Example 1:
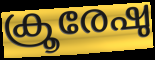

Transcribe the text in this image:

ക്രൂരേഷു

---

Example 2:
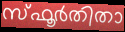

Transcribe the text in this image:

സ്ഫൂർതിതാ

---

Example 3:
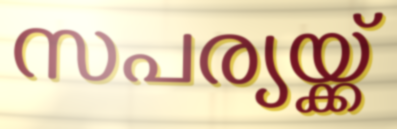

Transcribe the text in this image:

സപര്യയ്ക്ക്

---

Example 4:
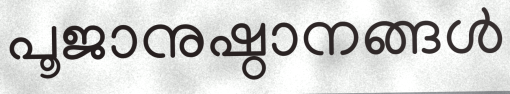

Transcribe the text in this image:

പൂജാനുഷ്ഠാനങ്ങൾ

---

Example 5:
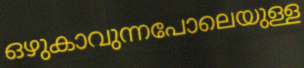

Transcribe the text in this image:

ഒഴുകാവുന്നപോലെയുള്ള